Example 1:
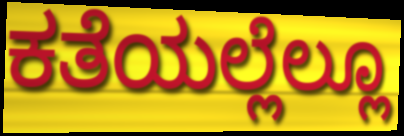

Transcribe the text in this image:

ಕತೆಯಲ್ಲೆಲ್ಲೂ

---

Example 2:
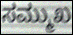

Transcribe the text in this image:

ಸಮ್ಮುಖ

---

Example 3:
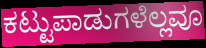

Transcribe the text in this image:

ಕಟ್ಟುಪಾಡುಗಳೆಲ್ಲವೂ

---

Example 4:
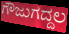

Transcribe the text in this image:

ಗೌಜುಗದ್ದಲ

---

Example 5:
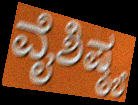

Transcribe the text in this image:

ವೈಶಿಷ್ಠ್ಯ